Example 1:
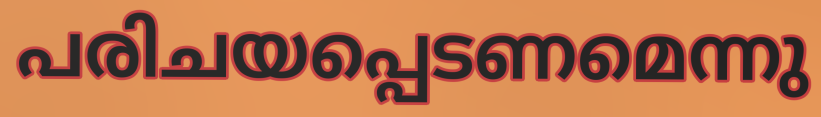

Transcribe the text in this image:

പരിചയപ്പെടണമെന്നു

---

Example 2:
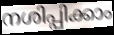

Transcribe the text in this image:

നശിപ്പിക്കാം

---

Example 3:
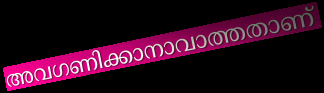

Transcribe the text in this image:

അവഗണിക്കാനാവാത്തതാണ്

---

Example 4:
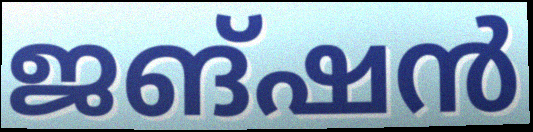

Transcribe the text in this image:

ജങ്ഷൻ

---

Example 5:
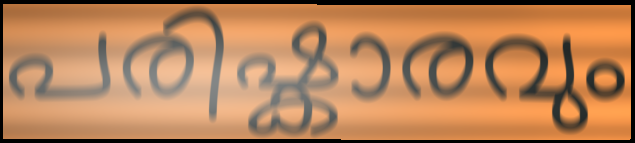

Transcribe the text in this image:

പരിഷ്കാരവും